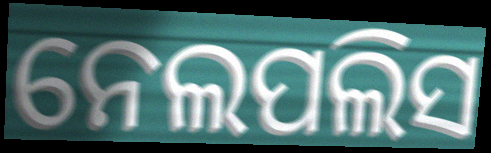
ନେଲପଲିସ